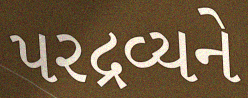
પરદ્રવ્યને